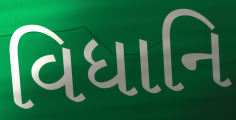
વિધાનિ